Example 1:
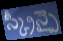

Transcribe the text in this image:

స్క్రీన్పై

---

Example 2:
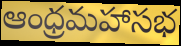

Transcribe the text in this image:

ఆంధ్రమహాసభ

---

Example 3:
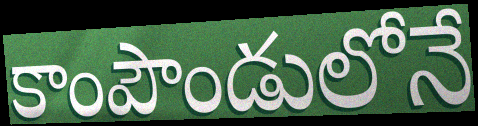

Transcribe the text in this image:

కాంపౌండులోనే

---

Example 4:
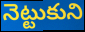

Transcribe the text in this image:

నెట్టుకుని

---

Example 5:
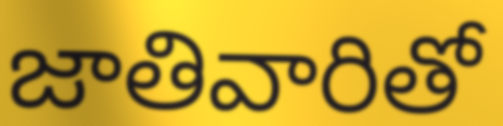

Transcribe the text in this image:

జాతివారితో